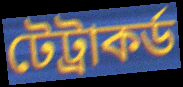
টেট্ৰাকৰ্ড